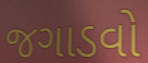
જગાડવો